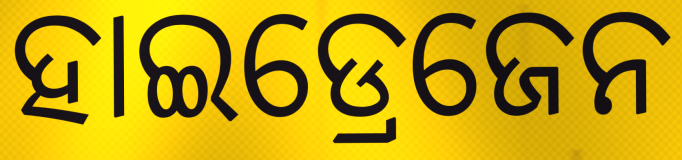
ହାଇଡ୍ରେଜେନ